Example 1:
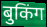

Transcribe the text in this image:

बुकिंग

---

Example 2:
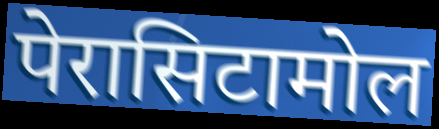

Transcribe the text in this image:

पेरासिटामोल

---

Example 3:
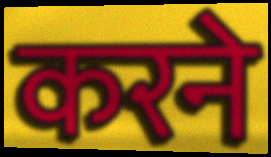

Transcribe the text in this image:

करने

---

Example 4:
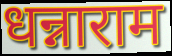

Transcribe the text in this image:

धन्नाराम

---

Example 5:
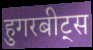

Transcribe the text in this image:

हुगरबीट्स